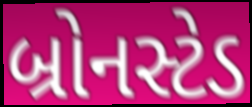
બ્રોનસ્ટેડ